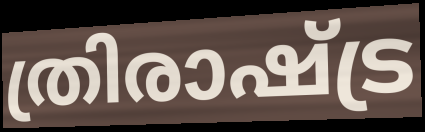
ത്രിരാഷ്ട്ര